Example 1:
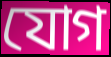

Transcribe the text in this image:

যোগ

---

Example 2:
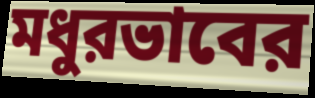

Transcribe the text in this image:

মধুরভাবের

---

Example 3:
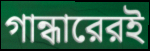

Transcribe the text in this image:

গান্ধারেরই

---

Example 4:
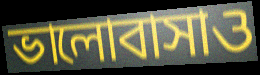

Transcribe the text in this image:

ভালোবাসাও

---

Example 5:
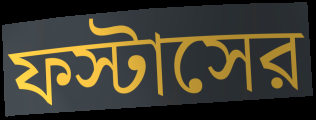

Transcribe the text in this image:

ফস্টাসের